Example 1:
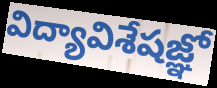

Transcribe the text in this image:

విద్యావిశేషజ్ఞో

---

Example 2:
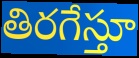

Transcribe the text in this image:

తిరగేస్తూ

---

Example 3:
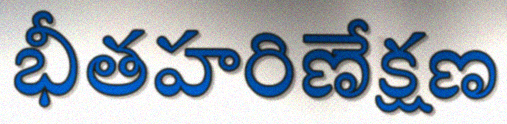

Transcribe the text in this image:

భీతహరిణేక్షణ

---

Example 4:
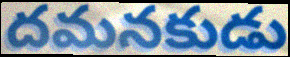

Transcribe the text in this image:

దమనకుడు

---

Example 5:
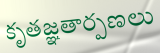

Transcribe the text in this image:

కృతజ్ఞతార్పణలు